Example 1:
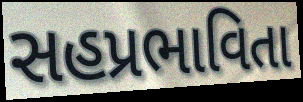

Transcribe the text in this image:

સહપ્રભાવિતા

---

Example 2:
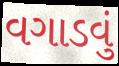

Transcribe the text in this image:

વગાડવું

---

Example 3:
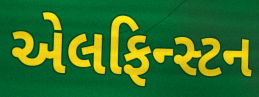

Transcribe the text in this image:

એલફિન્સ્ટન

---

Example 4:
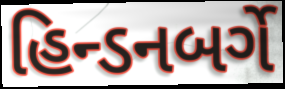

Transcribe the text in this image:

હિન્ડનબર્ગે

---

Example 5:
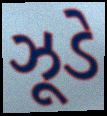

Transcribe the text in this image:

ઝૂડે